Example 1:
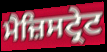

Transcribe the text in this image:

ਮੈਜ਼ਿਸਟ੍ਰੇਟ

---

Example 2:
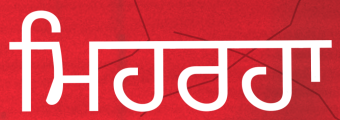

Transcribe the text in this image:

ਮਿਹਰਹਾ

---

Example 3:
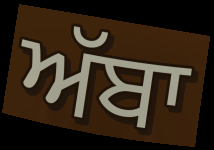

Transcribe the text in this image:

ਅੱਬਾ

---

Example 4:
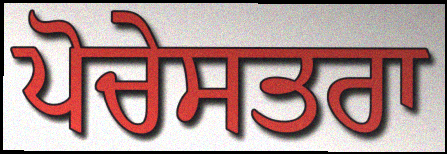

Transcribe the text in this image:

ਪੋਚੇਸਤਰਾ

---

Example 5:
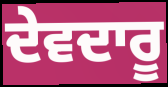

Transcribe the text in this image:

ਦੇਵਦਾਰੂ